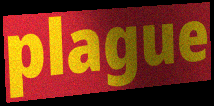
plague